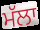
ਮੱਲਾ